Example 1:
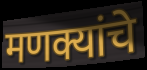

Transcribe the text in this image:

मणक्यांचे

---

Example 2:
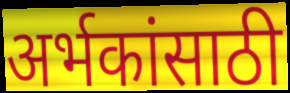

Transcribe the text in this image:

अर्भकांसाठी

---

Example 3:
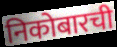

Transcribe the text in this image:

निकोबारची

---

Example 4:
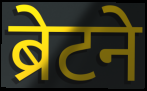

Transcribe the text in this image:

ब्रेटने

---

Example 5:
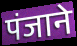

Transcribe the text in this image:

पंजाने